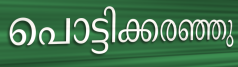
പൊട്ടിക്കരഞ്ഞു